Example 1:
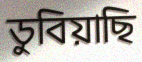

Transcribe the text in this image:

ডুবিয়াছি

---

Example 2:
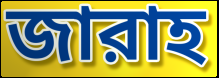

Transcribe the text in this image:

জারাহ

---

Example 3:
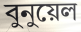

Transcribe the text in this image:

বুনুয়েল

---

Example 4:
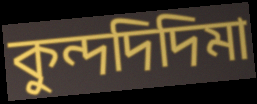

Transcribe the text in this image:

কুন্দদিদিমা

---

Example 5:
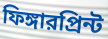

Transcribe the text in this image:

ফিঙ্গারপ্রিন্ট